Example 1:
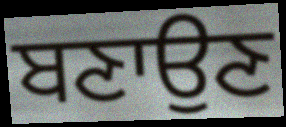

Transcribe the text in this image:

ਬਣਾਉਣ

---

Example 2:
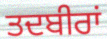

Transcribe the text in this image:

ਤਦਬੀਰਾਂ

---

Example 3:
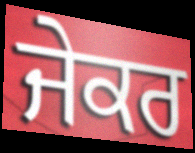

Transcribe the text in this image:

ਜੇਕਰ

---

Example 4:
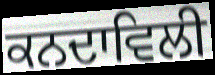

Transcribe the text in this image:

ਕਨਦਾਵਿਲੀ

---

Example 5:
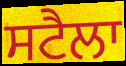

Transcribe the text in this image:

ਸਟੈਲਾ